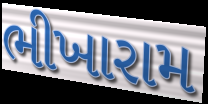
ભીખારામ